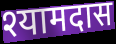
श्यामदास